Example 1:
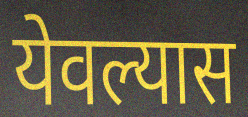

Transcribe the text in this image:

येवल्यास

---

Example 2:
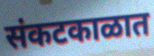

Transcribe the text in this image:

संकटकाळात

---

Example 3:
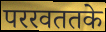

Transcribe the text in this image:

पररवततके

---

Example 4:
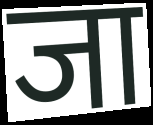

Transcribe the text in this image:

जा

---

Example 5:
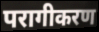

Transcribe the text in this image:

परागीकरण